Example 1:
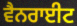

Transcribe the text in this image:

ਵੈਨਰਾਈਟ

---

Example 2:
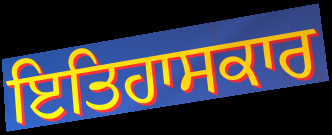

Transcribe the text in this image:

ਇਤਿਹਾਸਕਾਰ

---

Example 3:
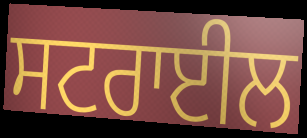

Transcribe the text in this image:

ਸਟਰਾਈਲ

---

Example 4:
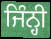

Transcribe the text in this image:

ਜਿੰਨ੍ਹੀ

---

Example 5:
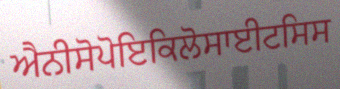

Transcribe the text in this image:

ਐਨੀਸੋਪੋਇਕਿਲੋਸਾਈਟਸਿਸ